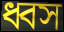
ধ্বস